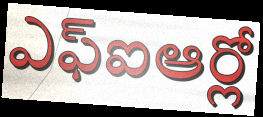
ఎఫ్ఐఆర్లో